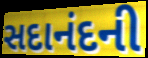
સદાનંદની